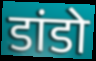
डांडो